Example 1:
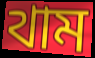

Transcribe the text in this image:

থাম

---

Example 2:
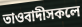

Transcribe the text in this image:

তাওবাদীসকলে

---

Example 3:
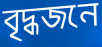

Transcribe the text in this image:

বৃদ্ধজনে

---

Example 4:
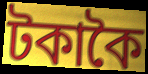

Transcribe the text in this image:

টকাকৈ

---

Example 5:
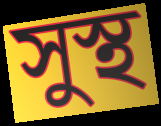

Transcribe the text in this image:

সুস্থ